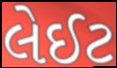
લેઈટ